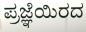
ಪ್ರಜ್ಞೆಯಿರದ